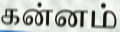
கன்னம்